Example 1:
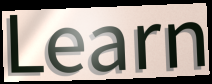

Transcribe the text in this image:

Learn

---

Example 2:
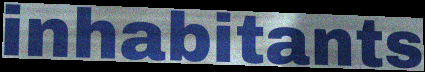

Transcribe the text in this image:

inhabitants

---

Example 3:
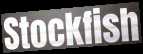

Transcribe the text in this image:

Stockfish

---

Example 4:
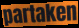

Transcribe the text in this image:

partaken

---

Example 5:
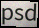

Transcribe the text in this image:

psd